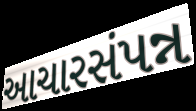
આચારસંપન્ન